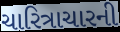
ચારિત્રાચારની